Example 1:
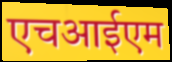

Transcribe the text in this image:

एचआईएम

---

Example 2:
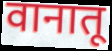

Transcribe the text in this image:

वानातू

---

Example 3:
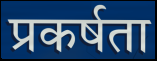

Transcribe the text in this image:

प्रकर्षता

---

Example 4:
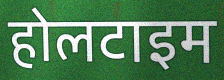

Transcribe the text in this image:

होलटाइम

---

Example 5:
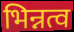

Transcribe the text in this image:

भिन्नत्व